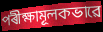
পৰীক্ষামূলকভাৱে